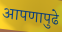
आपणापुढे